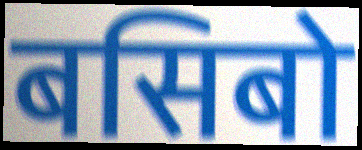
बसिबो